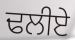
ਢਲੀਏ